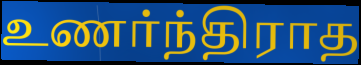
உணர்ந்திராத